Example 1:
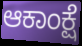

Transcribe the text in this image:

ಆಕಾಂಕ್ಷೆ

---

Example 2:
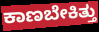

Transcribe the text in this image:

ಕಾಣಬೇಕಿತ್ತು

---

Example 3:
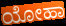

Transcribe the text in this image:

ಯೋಹಾ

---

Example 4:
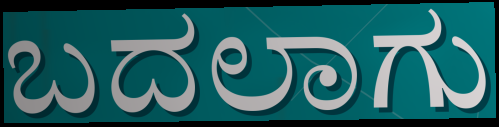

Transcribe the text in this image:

ಬದಲಾಗು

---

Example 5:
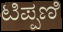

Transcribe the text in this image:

ಟಿಪ್ಪಣಿ